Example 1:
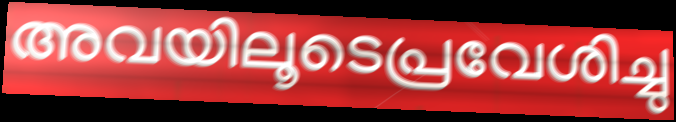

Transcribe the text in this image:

അവയിലൂടെപ്രവേശിച്ചു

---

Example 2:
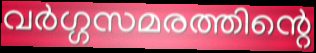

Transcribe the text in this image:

വർഗ്ഗസമരത്തിന്റെ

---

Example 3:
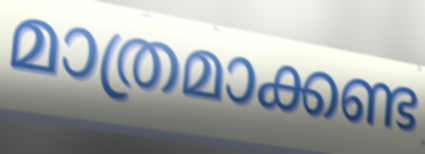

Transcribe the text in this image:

മാത്രമാക്കണ്ട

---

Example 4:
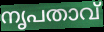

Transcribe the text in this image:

നൃപതാവ്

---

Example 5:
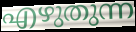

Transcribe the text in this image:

എഴുതുന്ന